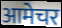
आमेचर